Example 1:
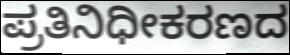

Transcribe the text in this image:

ಪ್ರತಿನಿಧೀಕರಣದ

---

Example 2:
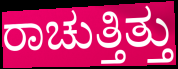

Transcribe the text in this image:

ರಾಚುತ್ತಿತ್ತು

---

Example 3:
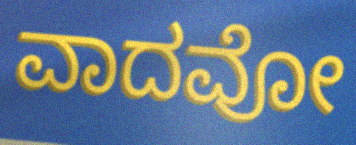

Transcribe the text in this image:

ವಾದವೋ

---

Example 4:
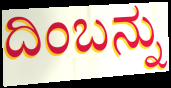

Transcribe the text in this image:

ದಿಂಬನ್ನು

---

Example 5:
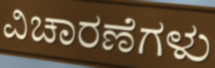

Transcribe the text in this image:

ವಿಚಾರಣೆಗಳು